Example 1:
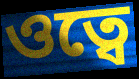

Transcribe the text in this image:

ওত্বে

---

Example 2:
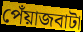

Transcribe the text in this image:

পেঁয়াজবাটা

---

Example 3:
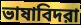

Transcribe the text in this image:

ভাষাবিদরা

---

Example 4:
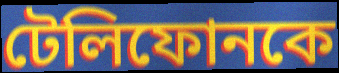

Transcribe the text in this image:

টেলিফোনকে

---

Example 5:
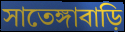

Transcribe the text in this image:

সাতেঙ্গাবাড়ি